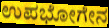
ಉಪಭೋಗೇನ